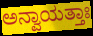
ಅನ್ವಾಯತ್ತಾಃ